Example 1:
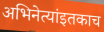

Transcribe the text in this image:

अभिनेत्यांइतकाच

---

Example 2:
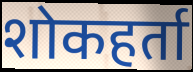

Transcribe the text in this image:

शोकहर्ता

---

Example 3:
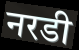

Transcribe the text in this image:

नरडी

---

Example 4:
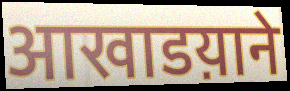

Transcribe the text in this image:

आखाडय़ाने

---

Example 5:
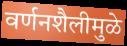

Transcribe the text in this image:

वर्णनशैलीमुळे